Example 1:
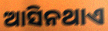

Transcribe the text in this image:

ଆସିନଥାଏ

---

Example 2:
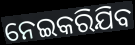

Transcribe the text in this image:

ନେଇକରିଯିବ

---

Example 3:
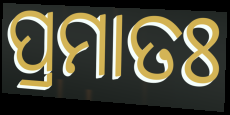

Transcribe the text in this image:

ପ୍ରମାତଃ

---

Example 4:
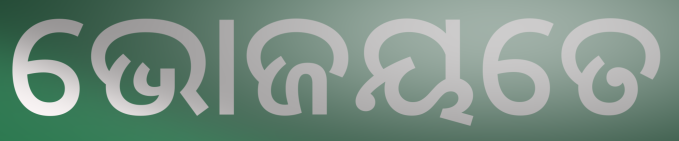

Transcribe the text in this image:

ଭୋଜୟତେ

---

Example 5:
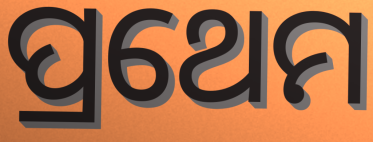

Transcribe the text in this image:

ପ୍ରଥେମ